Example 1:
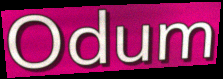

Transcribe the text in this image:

Odum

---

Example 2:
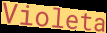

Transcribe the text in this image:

Violeta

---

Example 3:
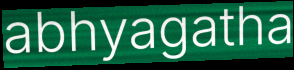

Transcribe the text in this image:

abhyagatha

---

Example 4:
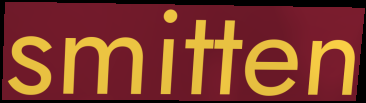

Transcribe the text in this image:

smitten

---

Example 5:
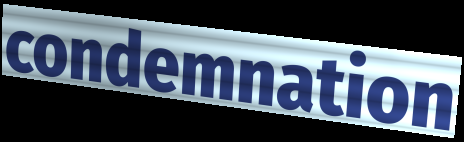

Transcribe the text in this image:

condemnation